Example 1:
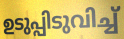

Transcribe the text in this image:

ഉടുപ്പിടുവിച്ച്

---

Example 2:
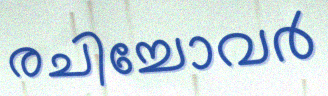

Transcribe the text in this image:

രചിച്ചോവർ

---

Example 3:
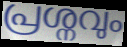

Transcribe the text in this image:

പ്രശ്നവും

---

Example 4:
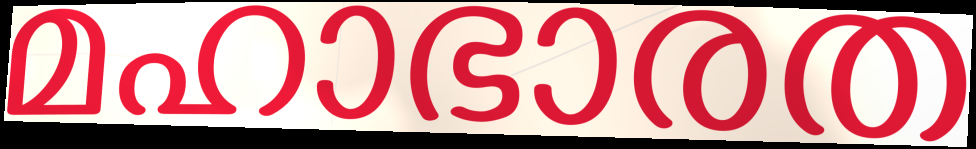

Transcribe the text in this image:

മഹാഭാരത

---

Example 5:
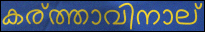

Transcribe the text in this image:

കര്ത്താവിനാല്